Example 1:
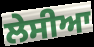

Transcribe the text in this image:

ਲੇਸੀਆ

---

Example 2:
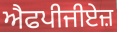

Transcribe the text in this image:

ਐਫਪੀਜੀਏਜ਼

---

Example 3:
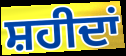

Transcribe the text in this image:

ਸ਼ਹੀਦਾਂ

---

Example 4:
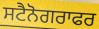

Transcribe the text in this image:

ਸਟੈਨੋਗਰਾਫਰ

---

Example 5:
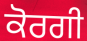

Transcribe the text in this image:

ਕੋਰਗੀ